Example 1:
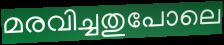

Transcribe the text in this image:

മരവിച്ചതുപോലെ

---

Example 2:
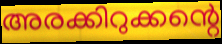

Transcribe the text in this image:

അരക്കിറുക്കന്റെ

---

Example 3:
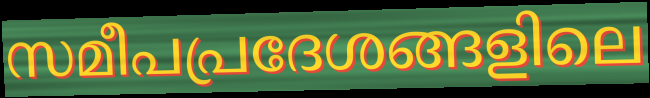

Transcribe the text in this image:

സമീപപ്രദേശങ്ങളിലെ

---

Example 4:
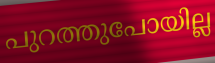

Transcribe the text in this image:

പുറത്തുപോയില്ല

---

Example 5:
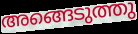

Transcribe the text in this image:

അങ്ങെടുത്തു